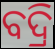
ବଦ୍ରି